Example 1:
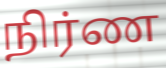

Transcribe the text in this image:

நிர்ண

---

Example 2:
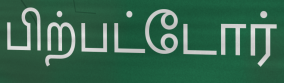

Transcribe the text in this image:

பிற்பட்டோர்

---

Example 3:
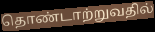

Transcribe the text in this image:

தொண்டாற்றுவதில்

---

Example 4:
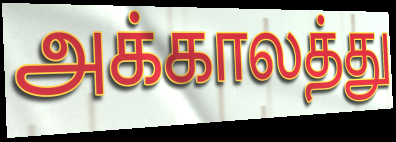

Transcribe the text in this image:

அக்காலத்து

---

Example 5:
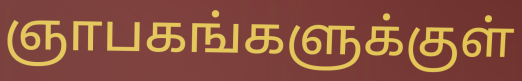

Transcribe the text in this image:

ஞாபகங்களுக்குள்